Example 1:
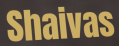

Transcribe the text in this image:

Shaivas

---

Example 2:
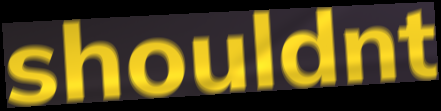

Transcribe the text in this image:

shouldnt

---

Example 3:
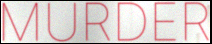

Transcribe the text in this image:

MURDER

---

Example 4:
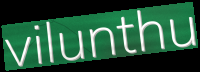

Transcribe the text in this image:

vilunthu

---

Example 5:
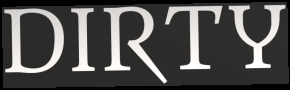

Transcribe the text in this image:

DIRTY